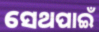
ସେଥପାଇଁ